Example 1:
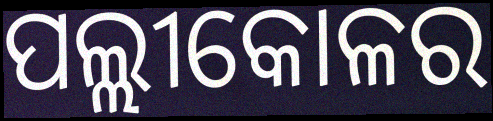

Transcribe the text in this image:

ପଲ୍ଲୀକୋଳର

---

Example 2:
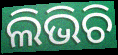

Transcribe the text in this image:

ଲିଭିଚି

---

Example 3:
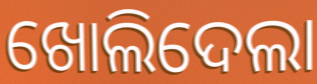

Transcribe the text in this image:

ଖୋଲିଦେଲା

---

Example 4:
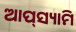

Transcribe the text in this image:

ଆପ୍‌ସ୍ୟାମି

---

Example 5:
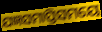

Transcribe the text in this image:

ଯଜ୍ଞସମାପ୍ତିସମୟେ